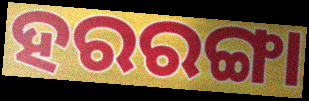
ହରରଙ୍ଗା